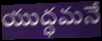
యుద్ధమనే